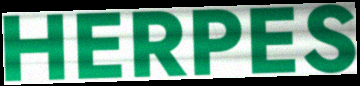
HERPES